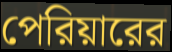
পেরিয়ারের